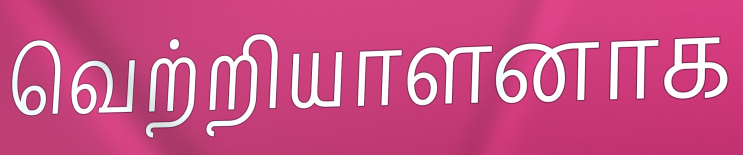
வெற்றியாளனாக